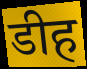
डीह